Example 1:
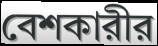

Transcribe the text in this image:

বেশকারীর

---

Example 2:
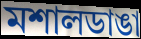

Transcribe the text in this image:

মশালডাঙা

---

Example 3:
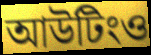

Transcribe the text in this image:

আউটিংও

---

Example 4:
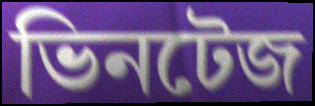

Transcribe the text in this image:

ভিনটেজ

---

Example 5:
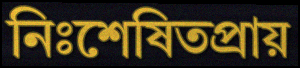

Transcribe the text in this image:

নিঃশেষিতপ্রায়